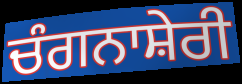
ਚੰਗਨਾਸ਼ੇਰੀ